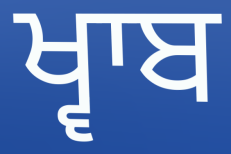
ਖ੍ਵਾਬ